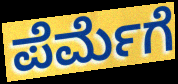
ಪೆರ್ಮೆಗೆ